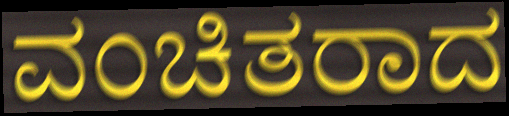
ವಂಚಿತರಾದ